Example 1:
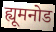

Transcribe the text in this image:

ह्यूमनोड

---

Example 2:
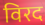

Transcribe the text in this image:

विरद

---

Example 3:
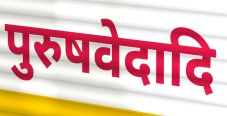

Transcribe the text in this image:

पुरुषवेदादि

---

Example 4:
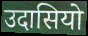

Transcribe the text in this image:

उदासियो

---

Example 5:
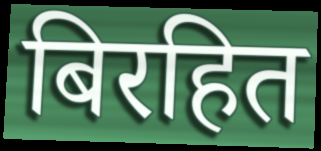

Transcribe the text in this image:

बिरहित